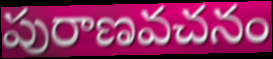
పురాణవచనం